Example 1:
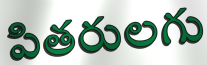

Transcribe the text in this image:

పితరులగు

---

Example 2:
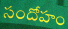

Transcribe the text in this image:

సందోహం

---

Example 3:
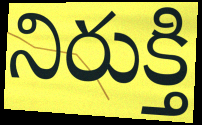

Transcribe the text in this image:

నిరుక్తి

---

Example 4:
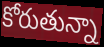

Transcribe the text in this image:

కోరుతున్నా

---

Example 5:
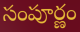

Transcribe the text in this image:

సంపూర్ణం